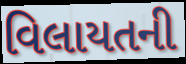
વિલાયતની